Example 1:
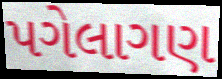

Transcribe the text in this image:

પગેલાગણ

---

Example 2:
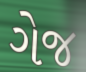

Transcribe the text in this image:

ગેજ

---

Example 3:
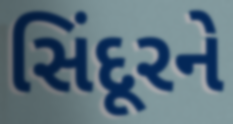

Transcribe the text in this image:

સિંદૂરને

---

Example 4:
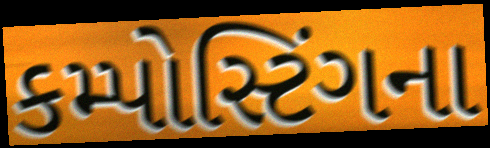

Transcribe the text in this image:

કમ્પોસ્ટિંગના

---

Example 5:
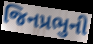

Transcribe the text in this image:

જિનપ્રભુની